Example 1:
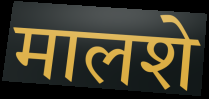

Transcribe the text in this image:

मालशे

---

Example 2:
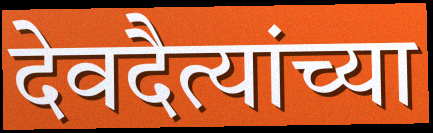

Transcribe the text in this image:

देवदैत्यांच्या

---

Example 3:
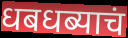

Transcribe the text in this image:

धबधब्याचं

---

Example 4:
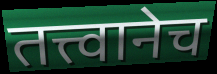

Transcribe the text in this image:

तत्त्वानेच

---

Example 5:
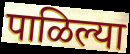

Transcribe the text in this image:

पाळिल्या